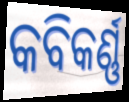
କବିକର୍ଣ୍ଣ